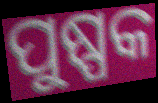
ପୁଷ୍ପକ